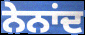
ਨੇਨਾਂਦ